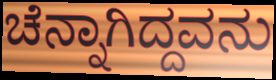
ಚೆನ್ನಾಗಿದ್ದವನು